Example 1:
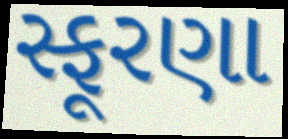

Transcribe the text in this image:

સ્ફૂરણા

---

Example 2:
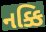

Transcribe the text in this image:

નક્કિ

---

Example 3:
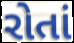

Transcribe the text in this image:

રોતાં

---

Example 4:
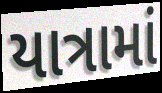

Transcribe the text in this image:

યાત્રામાં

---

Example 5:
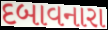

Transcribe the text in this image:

દબાવનારા